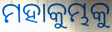
ମହାକୁମ୍ଭକୁ